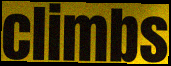
climbs